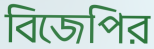
বিজেপির